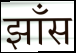
झाँस